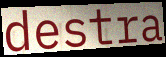
destra